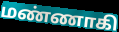
மண்ணாகி